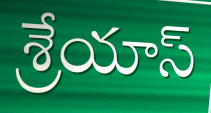
శ్రేయాస్